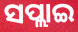
ସପ୍ଲାଇ